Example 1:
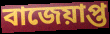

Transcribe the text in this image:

বাজেয়াপ্ত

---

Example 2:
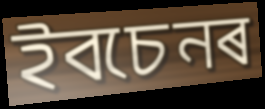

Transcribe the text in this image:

ইবচেনৰ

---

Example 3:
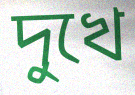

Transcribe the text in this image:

দুখে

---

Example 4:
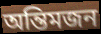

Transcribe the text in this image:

অন্তিমজন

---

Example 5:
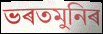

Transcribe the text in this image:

ভৰতমুনিৰ